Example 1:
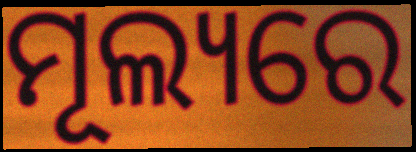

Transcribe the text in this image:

ମୂଲ୍ଯରେ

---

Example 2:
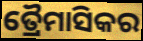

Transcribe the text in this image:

ତ୍ରୈମାସିକର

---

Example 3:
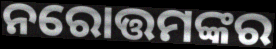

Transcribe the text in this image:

ନରୋତ୍ତମଙ୍କର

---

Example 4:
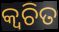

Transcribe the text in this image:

କ୍ୱଚିତ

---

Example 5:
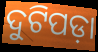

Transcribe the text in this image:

ଦୁଟିପଡ଼ା